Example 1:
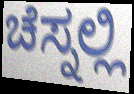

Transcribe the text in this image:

ಚೆಸ್ನಲ್ಲಿ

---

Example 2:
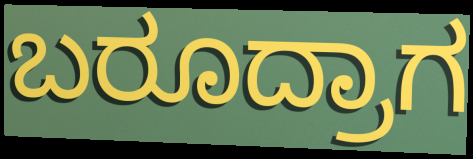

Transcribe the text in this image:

ಬರೂದ್ರಾಗ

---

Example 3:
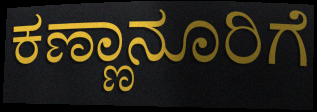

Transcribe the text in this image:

ಕಣ್ಣಾನೂರಿಗೆ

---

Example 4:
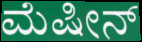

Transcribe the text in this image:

ಮೆಷೀನ್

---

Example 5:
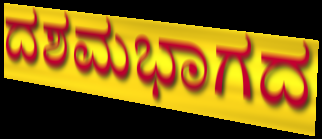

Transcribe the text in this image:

ದಶಮಭಾಗದ